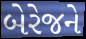
બેરેજને